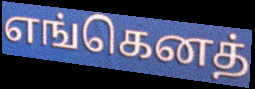
எங்கெனத்